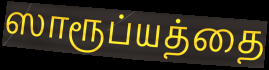
ஸாரூப்யத்தை